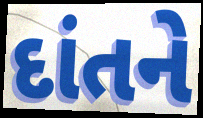
દાંતને